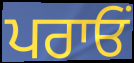
ਪਰਾਓਂ